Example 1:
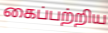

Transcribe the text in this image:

கைப்பற்றிய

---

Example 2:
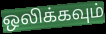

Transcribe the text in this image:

ஒலிக்கவும்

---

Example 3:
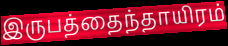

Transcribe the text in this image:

இருபத்தைந்தாயிரம்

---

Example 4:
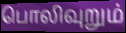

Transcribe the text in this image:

பொலிவுறும்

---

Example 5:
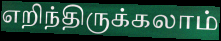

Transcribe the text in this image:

எறிந்திருக்கலாம்